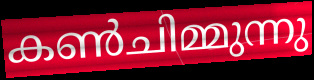
കൺചിമ്മുന്നു